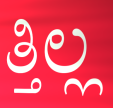
ತ್ತಿಲ್ಲ